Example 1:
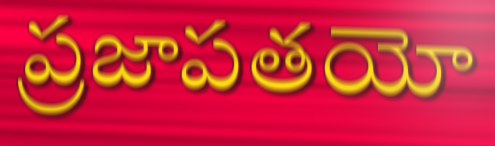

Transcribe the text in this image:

ప్రజాపతయో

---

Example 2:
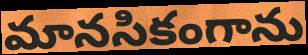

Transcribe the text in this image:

మానసికంగాను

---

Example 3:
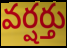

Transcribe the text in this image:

వర్షర్తు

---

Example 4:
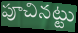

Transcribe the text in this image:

పూచినట్టు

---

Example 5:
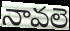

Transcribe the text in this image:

నావలె